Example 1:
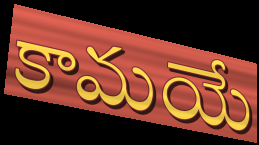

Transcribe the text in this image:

కామయే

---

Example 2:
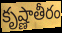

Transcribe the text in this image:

కృష్ణాతీరం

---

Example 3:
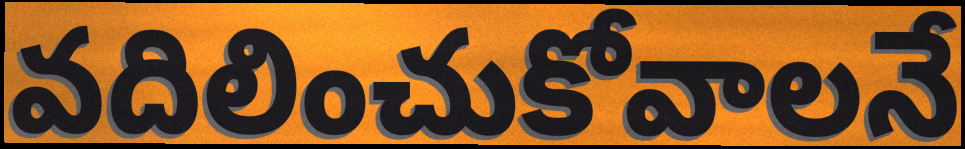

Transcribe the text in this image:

వదిలించుకోవాలనే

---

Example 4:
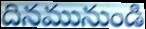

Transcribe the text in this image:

దినమునుండి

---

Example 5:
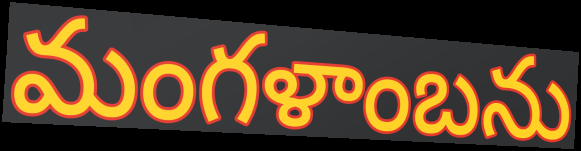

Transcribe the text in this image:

మంగళాంబను